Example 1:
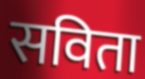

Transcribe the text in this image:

सविता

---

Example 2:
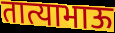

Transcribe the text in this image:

तात्याभाऊ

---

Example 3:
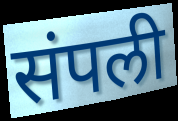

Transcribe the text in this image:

संपली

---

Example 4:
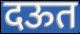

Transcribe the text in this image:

दऊत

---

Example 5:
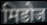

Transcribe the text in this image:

मिडोज